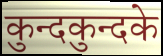
कुन्दकुन्दके